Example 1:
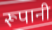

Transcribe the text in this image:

रूपानी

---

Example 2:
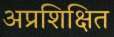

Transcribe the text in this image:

अप्रशिक्षित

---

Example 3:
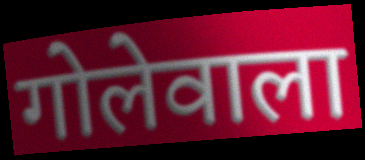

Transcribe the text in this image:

गोलेवाला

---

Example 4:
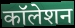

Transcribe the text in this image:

कॉलेशन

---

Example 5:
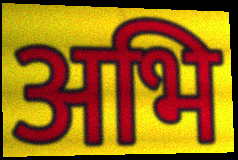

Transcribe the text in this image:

अभि